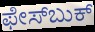
ಫೇಸ್‍ಬುಕ್